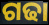
ଗଢା